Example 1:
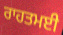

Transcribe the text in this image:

ਰਾਹਤਮਈ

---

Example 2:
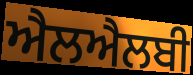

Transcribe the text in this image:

ਐਲਐਲਬੀ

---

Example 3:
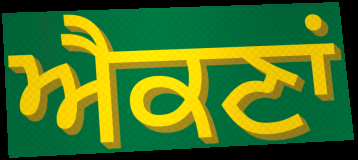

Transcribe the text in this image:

ਐਕਣਾਂ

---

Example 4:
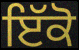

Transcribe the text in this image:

ਇੱਕੋ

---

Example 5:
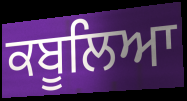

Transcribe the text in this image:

ਕਬੂਲਿਆ